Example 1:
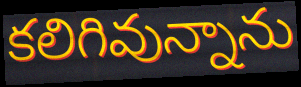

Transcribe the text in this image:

కలిగివున్నాను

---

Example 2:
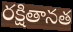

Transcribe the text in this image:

రక్షితానత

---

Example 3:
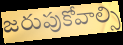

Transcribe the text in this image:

జరుపుకోవాల్సి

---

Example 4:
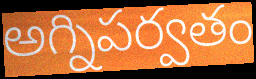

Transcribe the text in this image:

అగ్నిపర్వతం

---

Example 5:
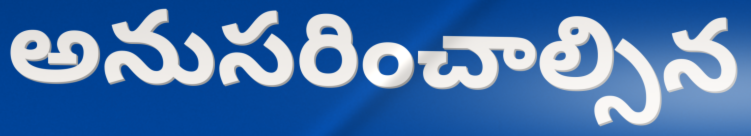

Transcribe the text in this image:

అనుసరించాల్సిన